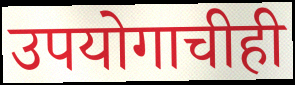
उपयोगाचीही